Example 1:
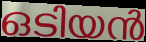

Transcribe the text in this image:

ഒടിയൻ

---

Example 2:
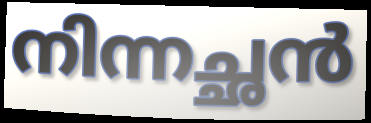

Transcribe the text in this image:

നിന്നച്ഛൻ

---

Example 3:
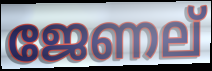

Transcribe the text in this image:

ജേണല്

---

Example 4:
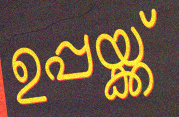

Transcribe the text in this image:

ഉപ്പയ്ക്ക്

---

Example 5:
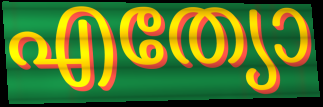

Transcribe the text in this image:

എത്യോ